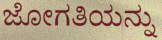
ಜೋಗತಿಯನ್ನು